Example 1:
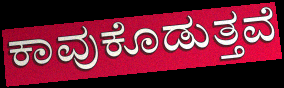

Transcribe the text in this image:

ಕಾವುಕೊಡುತ್ತವೆ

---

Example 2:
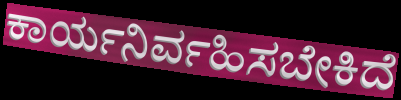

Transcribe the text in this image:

ಕಾರ್ಯನಿರ್ವಹಿಸಬೇಕಿದೆ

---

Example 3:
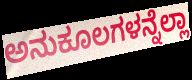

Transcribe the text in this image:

ಅನುಕೂಲಗಳನ್ನೆಲ್ಲಾ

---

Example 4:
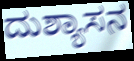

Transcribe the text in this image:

ದುಶ್ಯಾಸನ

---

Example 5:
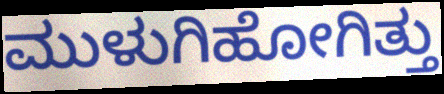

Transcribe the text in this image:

ಮುಳುಗಿಹೋಗಿತ್ತು